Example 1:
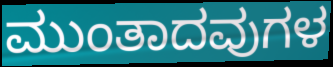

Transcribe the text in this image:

ಮುಂತಾದವುಗಳ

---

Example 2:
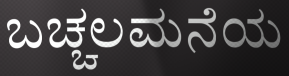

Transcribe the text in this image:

ಬಚ್ಚಲಮನೆಯ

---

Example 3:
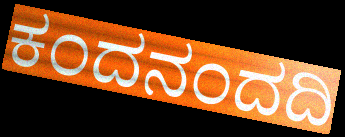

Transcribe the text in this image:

ಕಂದನಂದದಿ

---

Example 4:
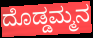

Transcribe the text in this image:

ದೊಡ್ಡಮ್ಮನ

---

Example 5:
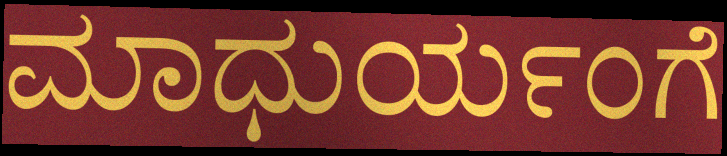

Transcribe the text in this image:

ಮಾಧುರ್ಯಂಗೆ